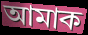
আমাক